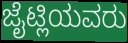
ಜೈಟ್ಲಿಯವರು